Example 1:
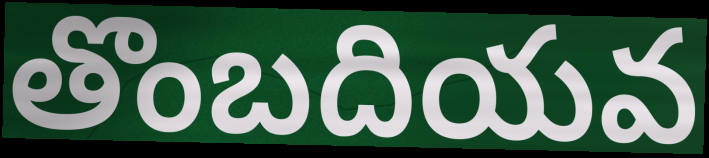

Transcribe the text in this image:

తొంబదియవ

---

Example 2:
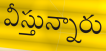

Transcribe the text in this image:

వీస్తున్నారు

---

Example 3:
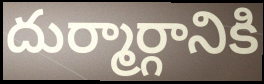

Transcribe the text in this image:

దుర్మార్గానికి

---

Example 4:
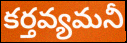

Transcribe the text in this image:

కర్తవ్యమనీ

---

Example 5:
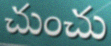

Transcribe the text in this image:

చుంచు